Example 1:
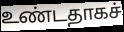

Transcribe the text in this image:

உண்டதாகச்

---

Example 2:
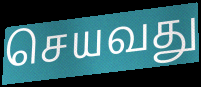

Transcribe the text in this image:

செயவது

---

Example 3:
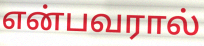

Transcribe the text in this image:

என்பவரால்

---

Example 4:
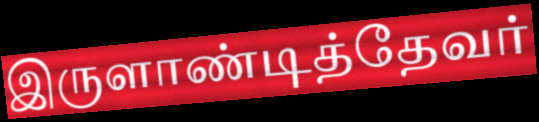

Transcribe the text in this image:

இருளாண்டித்தேவர்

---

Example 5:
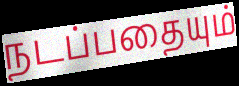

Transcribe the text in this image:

நடப்பதையும்